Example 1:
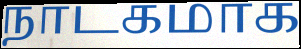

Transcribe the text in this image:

நாடகமாக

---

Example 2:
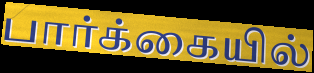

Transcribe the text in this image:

பார்க்கையில்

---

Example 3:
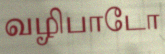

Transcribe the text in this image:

வழிபாடோ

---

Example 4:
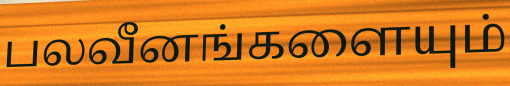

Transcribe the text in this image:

பலவீனங்களையும்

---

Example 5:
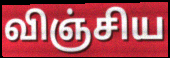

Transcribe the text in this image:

விஞ்சிய